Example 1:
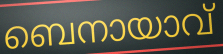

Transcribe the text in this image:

ബെനായാവ്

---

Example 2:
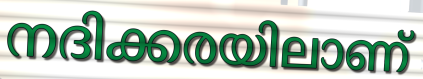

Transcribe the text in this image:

നദിക്കരയിലാണ്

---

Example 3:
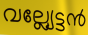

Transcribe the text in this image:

വല്ല്യേട്ടൻ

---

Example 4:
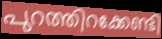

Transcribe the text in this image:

പുറത്തിറക്കേണ്ടി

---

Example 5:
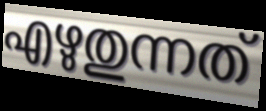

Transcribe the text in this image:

എഴുതുന്നത്